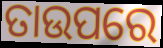
ତାଉପରେ